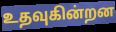
உதவுகின்றன